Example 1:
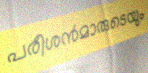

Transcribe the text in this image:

പരീശൻമാരുടെയും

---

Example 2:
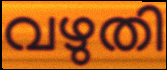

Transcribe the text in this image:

വഴുതി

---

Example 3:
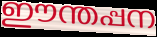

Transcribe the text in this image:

ഈന്തപ്പന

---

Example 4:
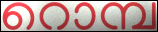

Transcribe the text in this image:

റൊമ്പ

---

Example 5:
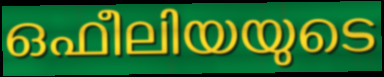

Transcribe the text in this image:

ഒഫീലിയയുടെ